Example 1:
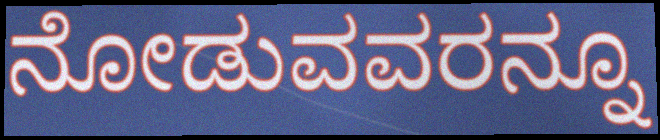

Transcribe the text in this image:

ನೋಡುವವರನ್ನೂ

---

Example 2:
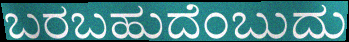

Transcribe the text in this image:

ಬರಬಹುದೆಂಬುದು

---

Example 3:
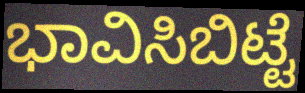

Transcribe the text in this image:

ಭಾವಿಸಿಬಿಟ್ಟೆ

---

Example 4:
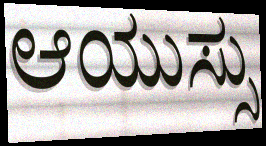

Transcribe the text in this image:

ಆಯುಸ್ಸು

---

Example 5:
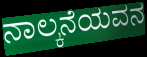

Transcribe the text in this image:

ನಾಲ್ಕನೆಯವನ